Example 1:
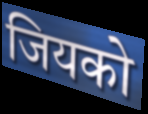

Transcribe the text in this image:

जियको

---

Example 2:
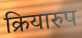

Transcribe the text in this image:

क्रियारुप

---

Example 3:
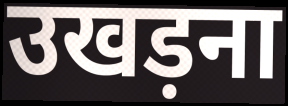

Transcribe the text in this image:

उखड़ना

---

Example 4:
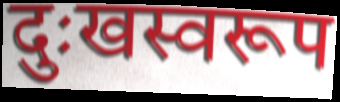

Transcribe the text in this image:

दुःखस्वरूप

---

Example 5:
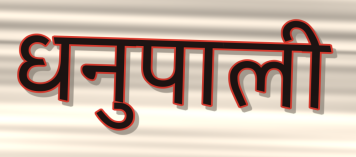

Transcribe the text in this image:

धनुपाली